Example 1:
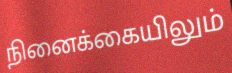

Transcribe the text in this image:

நினைக்கையிலும்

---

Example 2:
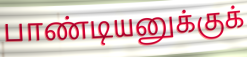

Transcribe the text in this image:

பாண்டியனுக்குக்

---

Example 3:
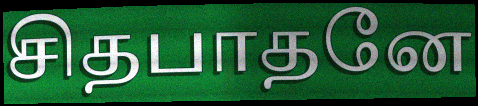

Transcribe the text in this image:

சிதபாதனே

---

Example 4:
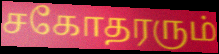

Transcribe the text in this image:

சகோதரரும்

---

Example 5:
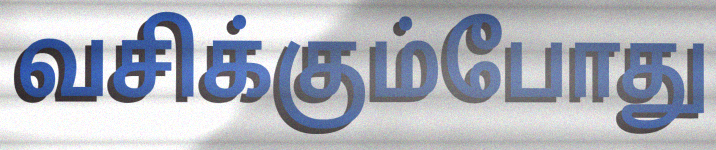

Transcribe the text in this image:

வசிக்கும்போது